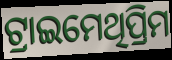
ଟ୍ରାଇମେଥିପ୍ରିମ